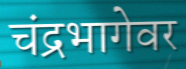
चंद्रभागेवर